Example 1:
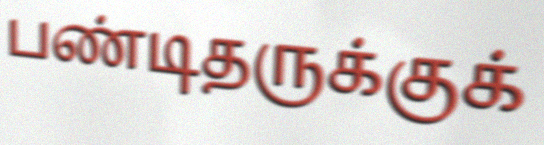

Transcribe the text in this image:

பண்டிதருக்குக்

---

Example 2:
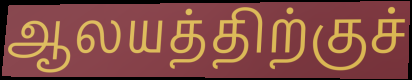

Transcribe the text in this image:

ஆலயத்திற்குச்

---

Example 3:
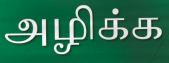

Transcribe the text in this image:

அழிக்க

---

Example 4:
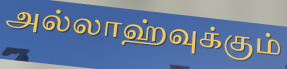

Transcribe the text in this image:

அல்லாஹ்வுக்கும்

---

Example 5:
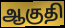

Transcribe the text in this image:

ஆகுதி